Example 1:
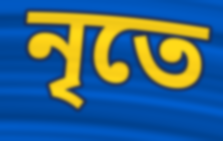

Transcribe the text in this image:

নৃতে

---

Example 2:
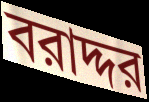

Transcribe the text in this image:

বরাদ্দর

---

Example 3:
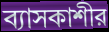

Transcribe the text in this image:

ব্যাসকাশীর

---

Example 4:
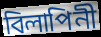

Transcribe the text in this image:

বিলাপিনী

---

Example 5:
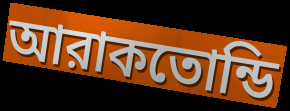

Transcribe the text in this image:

আরাকতোন্ডি